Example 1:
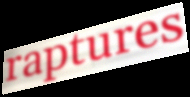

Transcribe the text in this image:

raptures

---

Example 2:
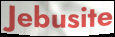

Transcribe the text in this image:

Jebusite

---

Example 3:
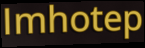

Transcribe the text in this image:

Imhotep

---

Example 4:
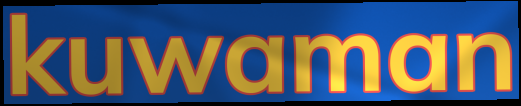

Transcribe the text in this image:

kuwaman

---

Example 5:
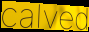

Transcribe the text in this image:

calved